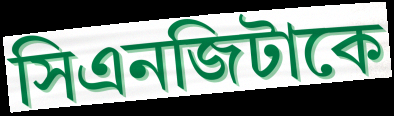
সিএনজিটাকে